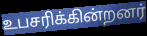
உபசரிக்கின்றனர்